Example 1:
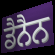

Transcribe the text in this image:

ਡੈਨੈਨ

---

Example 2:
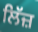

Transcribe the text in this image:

ਲਿੱਜ਼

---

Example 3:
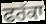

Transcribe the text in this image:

ਫਰੱਕਾ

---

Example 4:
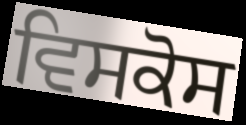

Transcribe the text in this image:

ਵਿਸਕੋਸ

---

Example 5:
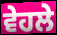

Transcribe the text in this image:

ਵੇਹਲੇ